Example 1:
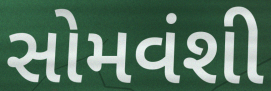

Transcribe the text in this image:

સોમવંશી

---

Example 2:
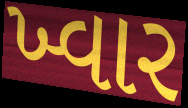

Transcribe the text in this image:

ખ્વાર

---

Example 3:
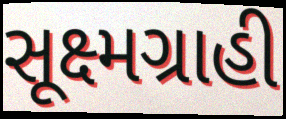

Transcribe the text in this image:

સૂક્ષ્મગ્રાહી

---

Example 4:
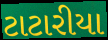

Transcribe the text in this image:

ટાટારીયા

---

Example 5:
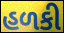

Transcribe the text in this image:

હળકી